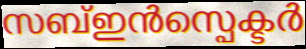
സബ്ഇൻസ്പെക്ടർ